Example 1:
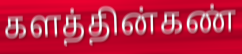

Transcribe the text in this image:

களத்தின்கண்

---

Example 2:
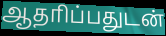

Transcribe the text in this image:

ஆதரிப்பதுடன்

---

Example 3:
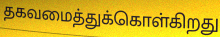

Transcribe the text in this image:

தகவமைத்துக்கொள்கிறது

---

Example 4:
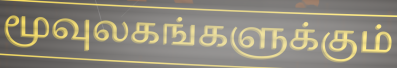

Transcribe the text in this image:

மூவுலகங்களுக்கும்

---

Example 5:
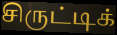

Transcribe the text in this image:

சிருட்டிக்